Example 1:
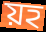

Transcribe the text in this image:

য়হ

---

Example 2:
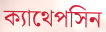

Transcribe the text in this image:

ক্যাথেপসিন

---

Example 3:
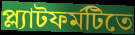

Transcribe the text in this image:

প্ল্যাটফর্মটিতে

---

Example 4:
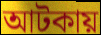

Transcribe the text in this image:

আটকায়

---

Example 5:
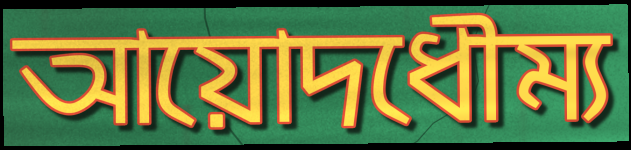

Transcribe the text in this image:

আয়োদধৌম্য